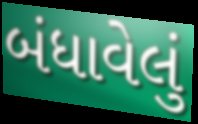
બંધાવેલું